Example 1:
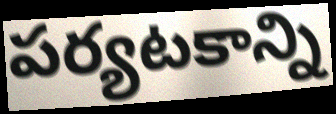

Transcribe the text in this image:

పర్యటకాన్ని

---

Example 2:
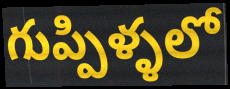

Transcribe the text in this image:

గుప్పిళ్ళలో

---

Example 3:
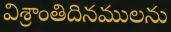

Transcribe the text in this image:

విశ్రాంతిదినములను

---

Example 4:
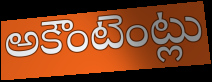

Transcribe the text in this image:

అకౌంటెంట్లు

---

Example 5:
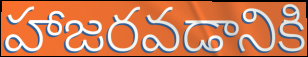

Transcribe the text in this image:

హాజరవడానికి